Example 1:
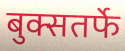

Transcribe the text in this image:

बुक्सतर्फे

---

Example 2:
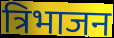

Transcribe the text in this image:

त्रिभाजन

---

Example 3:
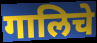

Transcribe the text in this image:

गालिचे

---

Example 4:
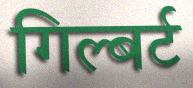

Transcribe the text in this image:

गिल्बर्ट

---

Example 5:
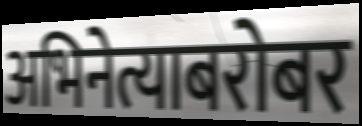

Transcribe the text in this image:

अभिनेत्याबरोबर